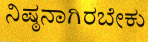
ನಿಷ್ಠನಾಗಿರಬೇಕು